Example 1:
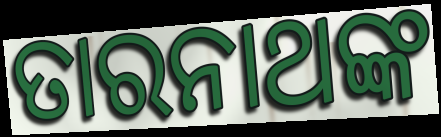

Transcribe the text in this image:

ତାରନାଥଙ୍କ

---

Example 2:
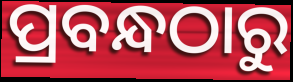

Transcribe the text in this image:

ପ୍ରବନ୍ଧଠାରୁ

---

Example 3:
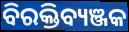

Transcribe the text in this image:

ବିରକ୍ତିବ୍ୟଞ୍ଜକ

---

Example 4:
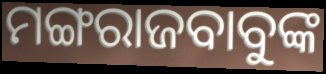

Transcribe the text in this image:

ମଙ୍ଗରାଜବାବୁଙ୍କ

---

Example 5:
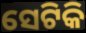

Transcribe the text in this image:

ସେଟିକି